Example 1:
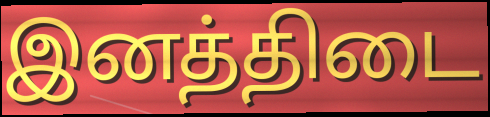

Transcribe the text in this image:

இனத்திடை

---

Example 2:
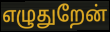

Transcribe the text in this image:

எழுதுறேன்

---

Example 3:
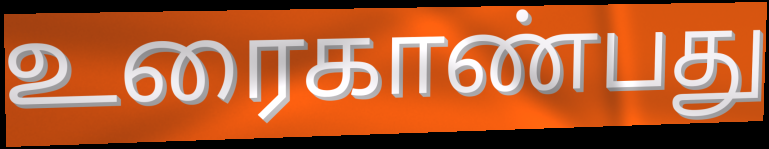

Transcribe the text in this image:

உரைகாண்பது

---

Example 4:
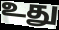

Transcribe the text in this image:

உது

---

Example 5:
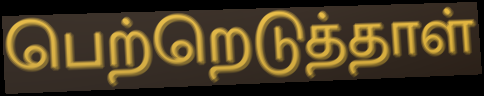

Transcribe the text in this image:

பெற்றெடுத்தாள்